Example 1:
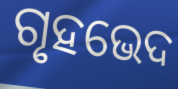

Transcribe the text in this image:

ଗୃହଭେଦ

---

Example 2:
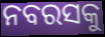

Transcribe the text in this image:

ନବରସକୁ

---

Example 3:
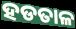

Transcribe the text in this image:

ହଡତାଳ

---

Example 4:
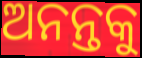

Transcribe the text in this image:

ଅନନ୍ତକୁ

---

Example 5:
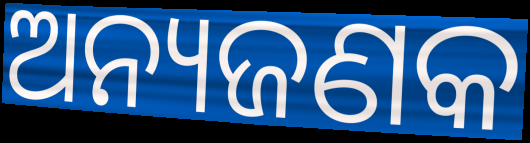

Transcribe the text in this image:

ଅନ୍ୟଜଣକ